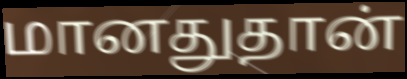
மானதுதான்